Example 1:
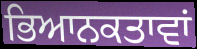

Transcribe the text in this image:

ਭਿਆਨਕਤਾਵਾਂ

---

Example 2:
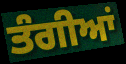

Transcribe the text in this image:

ਤੰਗੀਆਂ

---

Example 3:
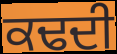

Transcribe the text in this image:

ਕਢਦੀ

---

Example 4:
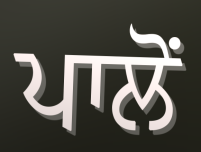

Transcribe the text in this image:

ਪਾਲੋਂ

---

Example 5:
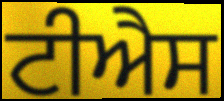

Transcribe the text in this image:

ਟੀਐਸ